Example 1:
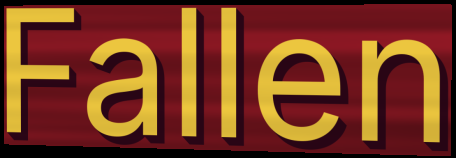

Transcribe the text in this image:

Fallen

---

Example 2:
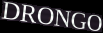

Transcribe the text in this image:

DRONGO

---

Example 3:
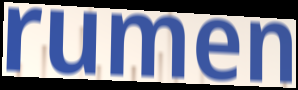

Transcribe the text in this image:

rumen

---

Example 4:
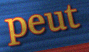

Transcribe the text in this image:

peut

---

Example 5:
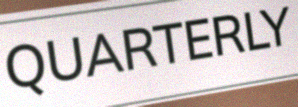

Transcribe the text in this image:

QUARTERLY